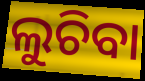
ଲୁଚିବା